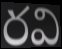
రవి